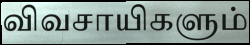
விவசாயிகளும்